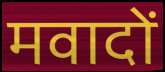
मवादों